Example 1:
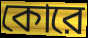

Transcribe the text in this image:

কোরে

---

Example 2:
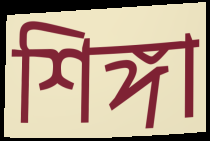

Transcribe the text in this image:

শিঙ্গা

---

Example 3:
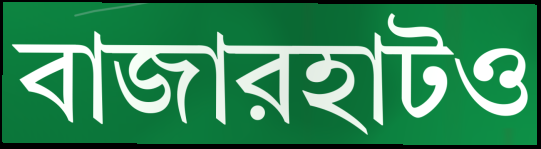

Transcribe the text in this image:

বাজারহাটও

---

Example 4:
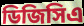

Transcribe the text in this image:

ডিজিসিএ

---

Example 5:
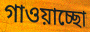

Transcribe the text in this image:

গাওয়াচ্ছো